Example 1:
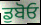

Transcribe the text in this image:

ਡੁਬੋਓ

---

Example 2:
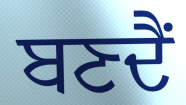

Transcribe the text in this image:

ਬਣਦੈਂ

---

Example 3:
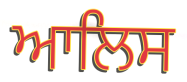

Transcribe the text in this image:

ਆਲਿਸ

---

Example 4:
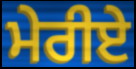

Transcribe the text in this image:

ਮੇਰੀਏ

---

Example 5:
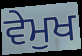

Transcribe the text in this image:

ਵੇਮੁਖ